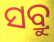
ସବ୍ରୁ